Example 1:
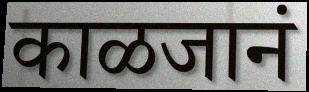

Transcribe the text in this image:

काळजानं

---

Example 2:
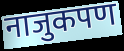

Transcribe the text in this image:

नाजुकपण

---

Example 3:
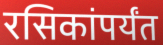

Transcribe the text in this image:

रसिकांपर्यंत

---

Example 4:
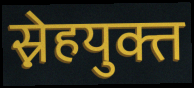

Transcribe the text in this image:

स्नेहयुक्त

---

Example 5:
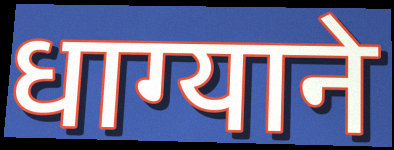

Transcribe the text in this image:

धाग्याने